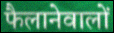
फैलानेवालों